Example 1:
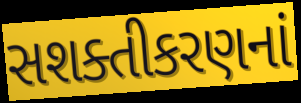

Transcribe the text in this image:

સશક્તીકરણનાં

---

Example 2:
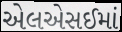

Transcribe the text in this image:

એલએસઈમાં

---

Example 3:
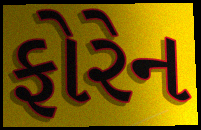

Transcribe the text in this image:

ફોરેન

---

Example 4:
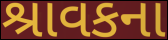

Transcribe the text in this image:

શ્રાવકના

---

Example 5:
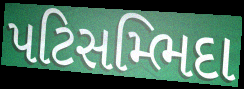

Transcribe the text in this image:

પટિસમ્ભિદા